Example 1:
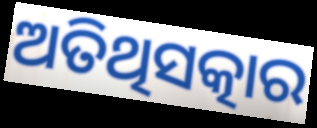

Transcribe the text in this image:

ଅତିଥିସତ୍କାର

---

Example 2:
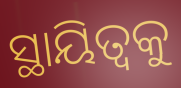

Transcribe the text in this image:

ସ୍ଥାୟିତ୍ୱକୁ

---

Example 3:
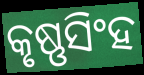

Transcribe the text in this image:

କୃଷ୍ଣସିଂହ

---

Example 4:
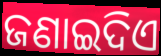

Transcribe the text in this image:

ଜଣାଇଦିଏ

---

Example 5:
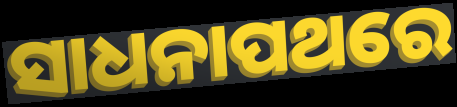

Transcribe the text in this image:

ସାଧନାପଥରେ